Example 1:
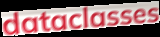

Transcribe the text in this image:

dataclasses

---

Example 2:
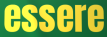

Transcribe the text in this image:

essere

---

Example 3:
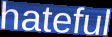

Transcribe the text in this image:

hateful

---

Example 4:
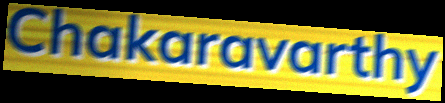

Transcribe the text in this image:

Chakaravarthy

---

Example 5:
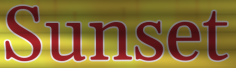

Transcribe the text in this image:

Sunset